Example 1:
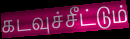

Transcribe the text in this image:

கடவுச்சீட்டும்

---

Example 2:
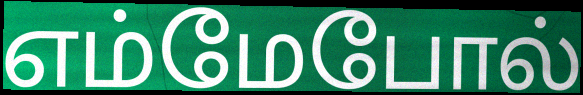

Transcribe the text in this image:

எம்மேபோல்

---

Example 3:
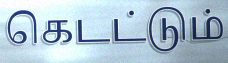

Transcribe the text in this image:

கெடட்டும்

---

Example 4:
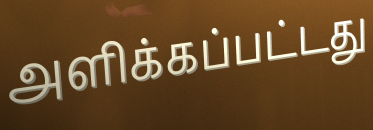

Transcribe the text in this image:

அளிக்கப்பட்டது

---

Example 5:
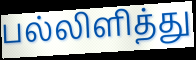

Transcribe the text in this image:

பல்லிளித்து